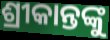
ଶ୍ରୀକାନ୍ତଙ୍କୁ